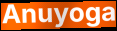
Anuyoga